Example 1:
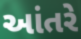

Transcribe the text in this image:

આંતરે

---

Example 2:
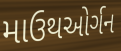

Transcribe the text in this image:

માઉથઓર્ગન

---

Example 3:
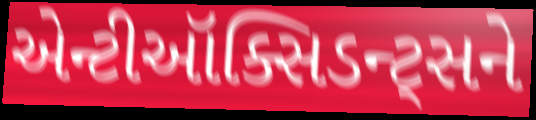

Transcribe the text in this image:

એન્ટીઑક્સિડન્ટ્સને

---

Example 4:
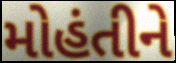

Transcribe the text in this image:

મોહંતીને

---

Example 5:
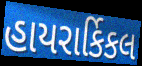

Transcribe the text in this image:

હાયરાર્કિકલ